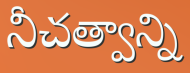
నీచత్వాన్ని